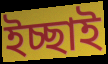
ইচ্ছাই